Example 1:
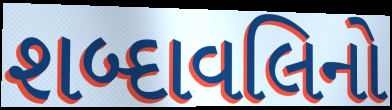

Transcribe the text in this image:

શબ્દાવલિનો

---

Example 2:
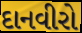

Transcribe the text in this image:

દાનવીરો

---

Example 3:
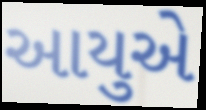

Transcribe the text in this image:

આયુએ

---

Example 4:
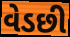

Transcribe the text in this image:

વેડછી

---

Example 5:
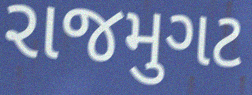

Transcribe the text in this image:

રાજમુગટ